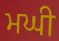
ਮਘੀ